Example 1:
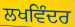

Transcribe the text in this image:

ਲਖਵਿੰਦਰ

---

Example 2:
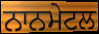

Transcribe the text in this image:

ਨਾਨਮੇਟਲ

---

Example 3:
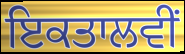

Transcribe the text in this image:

ਇਕਤਾਲਵੀਂ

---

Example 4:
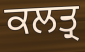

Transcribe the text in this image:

ਕਲਤ੍ਰ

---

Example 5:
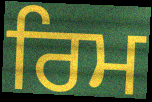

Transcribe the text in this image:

ਰਿਮ